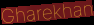
Gharekhan